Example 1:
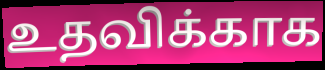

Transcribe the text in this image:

உதவிக்காக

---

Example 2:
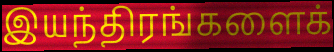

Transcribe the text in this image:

இயந்திரங்களைக்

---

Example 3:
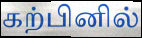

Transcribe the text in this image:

கற்பினில்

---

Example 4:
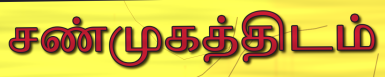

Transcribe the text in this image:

சண்முகத்திடம்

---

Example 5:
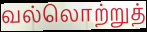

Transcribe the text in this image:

வல்லொற்றுத்